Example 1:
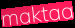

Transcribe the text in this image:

maktaa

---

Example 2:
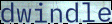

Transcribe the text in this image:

dwindle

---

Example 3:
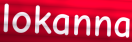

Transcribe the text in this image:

lokanna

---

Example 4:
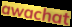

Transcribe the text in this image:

awachat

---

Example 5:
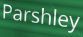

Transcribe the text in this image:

Parshley